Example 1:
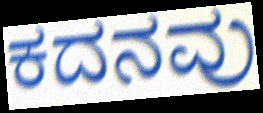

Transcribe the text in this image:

ಕದನವು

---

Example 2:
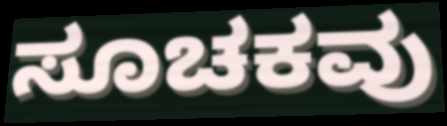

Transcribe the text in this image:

ಸೂಚಕವು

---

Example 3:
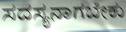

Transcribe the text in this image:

ಸದಸ್ಯನಾಗಬೇಕು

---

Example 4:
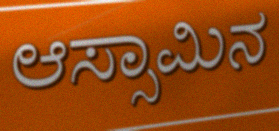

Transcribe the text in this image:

ಆಸ್ಸಾಮಿನ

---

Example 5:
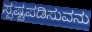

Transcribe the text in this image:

ಸ್ಪಷ್ಟಪಡಿಸುವನು